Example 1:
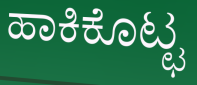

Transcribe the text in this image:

ಹಾಕಿಕೊಟ್ಟ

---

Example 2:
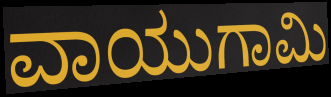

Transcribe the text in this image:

ವಾಯುಗಾಮಿ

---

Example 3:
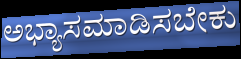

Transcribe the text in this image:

ಅಭ್ಯಾಸಮಾಡಿಸಬೇಕು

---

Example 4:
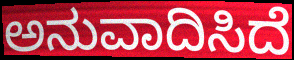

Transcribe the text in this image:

ಅನುವಾದಿಸಿದೆ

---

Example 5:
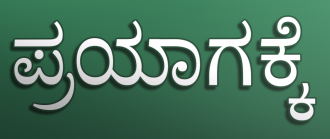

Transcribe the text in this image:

ಪ್ರಯಾಗಕ್ಕೆ